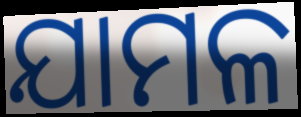
ଯାମଳ